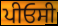
ਪੀਓਸੀ